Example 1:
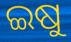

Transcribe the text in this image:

ଇଷୁ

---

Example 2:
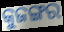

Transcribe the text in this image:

କୁଜଙ୍ଗର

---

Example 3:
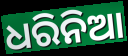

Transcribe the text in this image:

ଧରିନିଆ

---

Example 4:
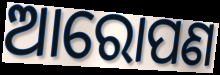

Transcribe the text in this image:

ଆରୋପଣ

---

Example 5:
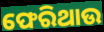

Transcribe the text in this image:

ଫେରିଥାଉ